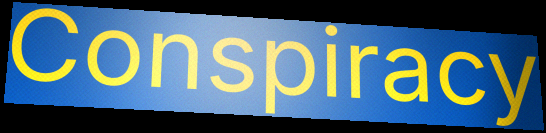
Conspiracy